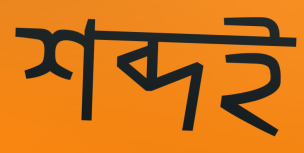
শব্দই